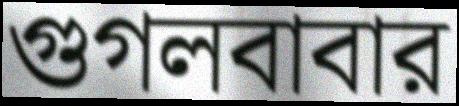
গুগলবাবার